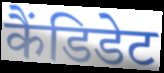
कैंडिडेट